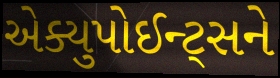
એક્યુપોઈન્ટ્સને